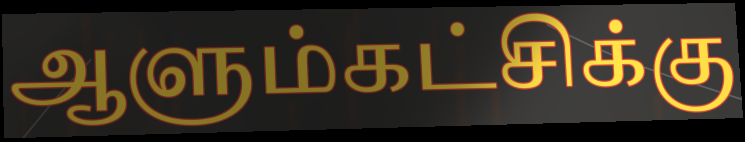
ஆளும்கட்சிக்கு